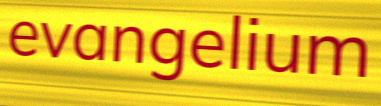
evangelium